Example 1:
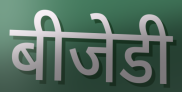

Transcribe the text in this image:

बीजेडी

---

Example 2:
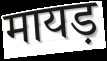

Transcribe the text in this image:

मायड़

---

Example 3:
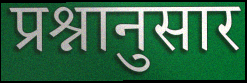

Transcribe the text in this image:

प्रश्नानुसार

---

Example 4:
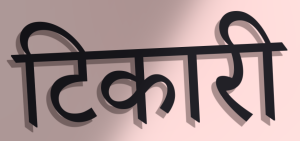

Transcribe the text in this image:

टिकारी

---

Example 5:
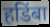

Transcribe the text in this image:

हडिंबा